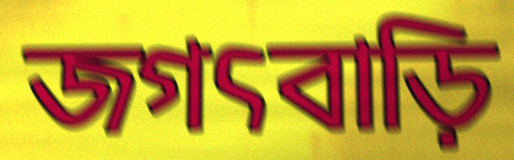
জগৎবাড়ি